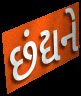
છંદ્યને